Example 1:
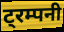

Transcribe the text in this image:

ट्रम्पनी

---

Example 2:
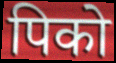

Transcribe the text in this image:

पिको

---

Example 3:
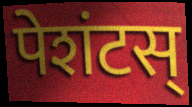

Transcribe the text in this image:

पेशंटस्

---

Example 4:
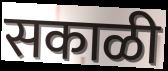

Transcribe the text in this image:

सकाळी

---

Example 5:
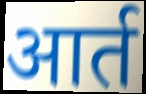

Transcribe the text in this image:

आर्त